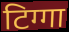
टिग्गा